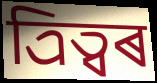
ত্ৰিত্বৰ